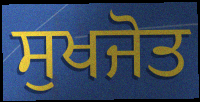
ਸੁਖਜੋਤ